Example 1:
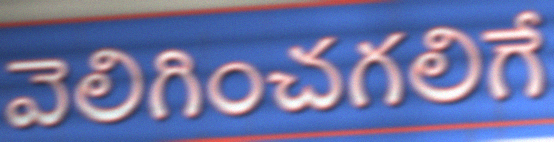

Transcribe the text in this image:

వెలిగించగలిగే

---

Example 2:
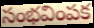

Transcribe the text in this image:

సంభవింపక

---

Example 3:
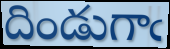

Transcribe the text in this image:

దిండుగాఁ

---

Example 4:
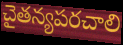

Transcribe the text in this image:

చైతన్యపరచాలి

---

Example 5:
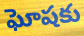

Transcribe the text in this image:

ఘోషకు